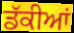
ਡੱਕੀਆਂ